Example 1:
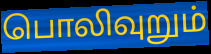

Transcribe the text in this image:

பொலிவுறும்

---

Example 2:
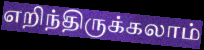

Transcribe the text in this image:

எறிந்திருக்கலாம்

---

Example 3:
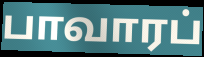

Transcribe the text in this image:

பாவாரப்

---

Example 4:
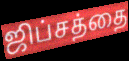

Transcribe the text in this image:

ஜிப்சத்தை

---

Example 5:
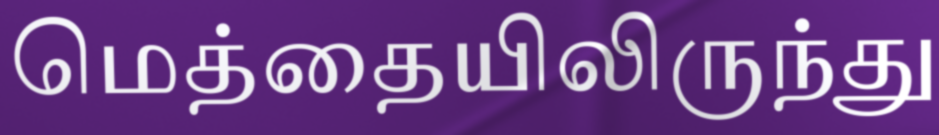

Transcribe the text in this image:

மெத்தையிலிருந்து